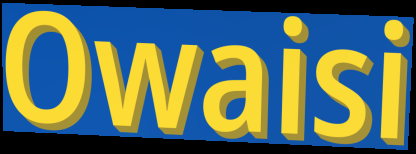
Owaisi